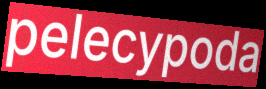
pelecypoda